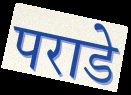
पराडे